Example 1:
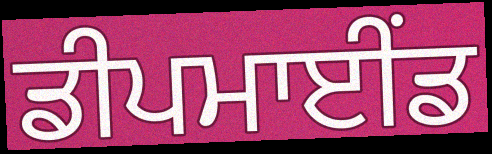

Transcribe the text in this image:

ਡੀਪਮਾਈਂਡ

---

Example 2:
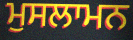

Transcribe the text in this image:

ਮੁਸਲਾਮਨ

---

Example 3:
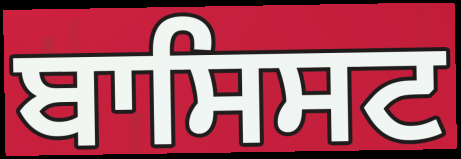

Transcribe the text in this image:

ਬਾਸਿਸਟ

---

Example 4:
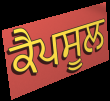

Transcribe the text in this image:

ਕੈਪਸੂਲ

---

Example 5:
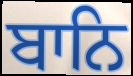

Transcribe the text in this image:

ਬਾਨਿ